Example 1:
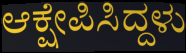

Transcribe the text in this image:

ಆಕ್ಷೇಪಿಸಿದ್ದಳು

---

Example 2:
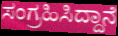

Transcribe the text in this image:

ಸಂಗ್ರಹಿಸಿದ್ದಾನೆ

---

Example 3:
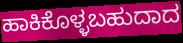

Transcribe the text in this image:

ಹಾಕಿಕೊಳ್ಳಬಹುದಾದ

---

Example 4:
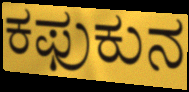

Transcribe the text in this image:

ಕಫುಕುನ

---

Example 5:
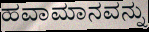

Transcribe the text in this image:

ಹವಾಮಾನವನ್ನು